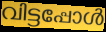
വിട്ടപ്പോൾ